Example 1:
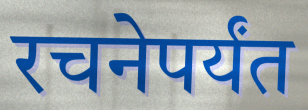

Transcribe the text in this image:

रचनेपर्यंत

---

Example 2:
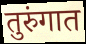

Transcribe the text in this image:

तुरुंगात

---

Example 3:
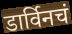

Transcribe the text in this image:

डार्विनचं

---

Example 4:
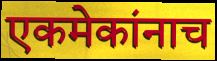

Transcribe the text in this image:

एकमेकांनाच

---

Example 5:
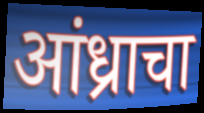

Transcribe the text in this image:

आंध्राचा